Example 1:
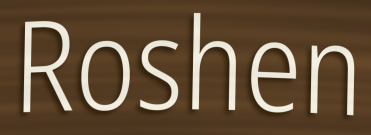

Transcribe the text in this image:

Roshen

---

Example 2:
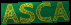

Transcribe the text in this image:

ASCA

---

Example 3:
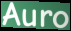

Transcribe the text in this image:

Auro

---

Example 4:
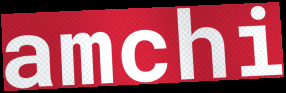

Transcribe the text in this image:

amchi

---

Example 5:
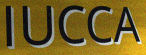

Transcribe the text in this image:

IUCCA